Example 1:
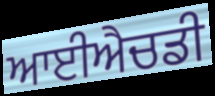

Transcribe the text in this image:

ਆਈਐਚਡੀ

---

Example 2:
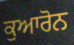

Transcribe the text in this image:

ਕੁਆਰੋਨ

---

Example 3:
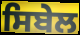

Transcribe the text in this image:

ਸਿਬੇਲ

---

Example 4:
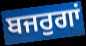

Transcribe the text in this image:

ਬਜਰੁਗਾਂ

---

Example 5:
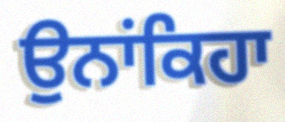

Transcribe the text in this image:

ਉਨਾਂਕਿਹਾ